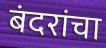
बंदरांचा